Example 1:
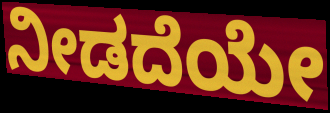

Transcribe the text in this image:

ನೀಡದೆಯೇ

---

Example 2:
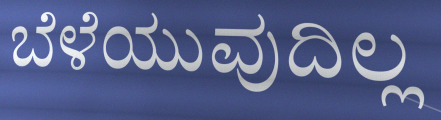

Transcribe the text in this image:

ಬೆಳೆಯುವುದಿಲ್ಲ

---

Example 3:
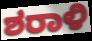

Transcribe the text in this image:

ಶರಾಳಿ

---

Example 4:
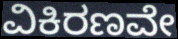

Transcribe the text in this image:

ವಿಕಿರಣವೇ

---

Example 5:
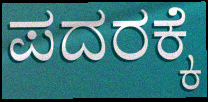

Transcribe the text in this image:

ಪದರಕ್ಕೆ